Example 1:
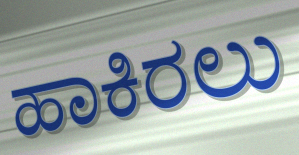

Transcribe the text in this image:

ಹಾಕಿರಲು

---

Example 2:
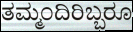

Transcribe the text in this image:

ತಮ್ಮಂದಿರಿಬ್ಬರೂ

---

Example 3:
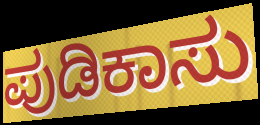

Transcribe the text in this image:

ಪುಡಿಕಾಸು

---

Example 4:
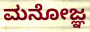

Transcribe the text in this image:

ಮನೋಜ್ಞ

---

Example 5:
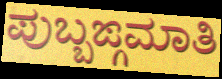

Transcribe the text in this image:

ಪುಬ್ಬಙ್ಗಮಾತಿ